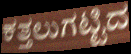
ಕತ್ತಲುಗಟ್ಟಿದ